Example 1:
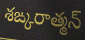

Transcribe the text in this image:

శఙ్కరాత్మన్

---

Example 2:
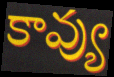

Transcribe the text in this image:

కావ్యు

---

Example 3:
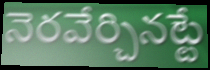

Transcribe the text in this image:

నెరవేర్చినట్టే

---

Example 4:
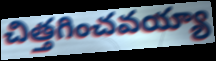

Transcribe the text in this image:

చిత్తగించవయ్యా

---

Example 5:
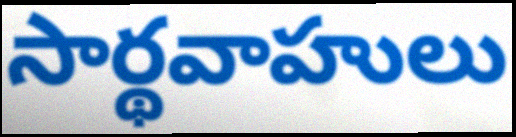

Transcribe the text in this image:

సార్థవాహులు